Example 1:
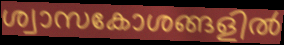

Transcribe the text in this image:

ശ്വാസകോശങ്ങളിൽ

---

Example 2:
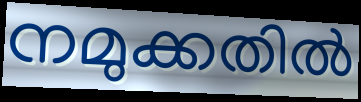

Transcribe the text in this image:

നമുക്കതിൽ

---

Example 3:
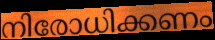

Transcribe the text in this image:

നിരോധിക്കണം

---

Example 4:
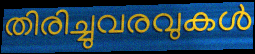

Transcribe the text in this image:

തിരിച്ചുവരവുകൾ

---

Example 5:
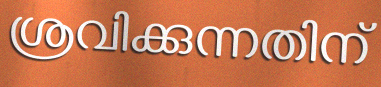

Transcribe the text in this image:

ശ്രവിക്കുന്നതിന്